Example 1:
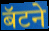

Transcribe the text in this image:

बॅटने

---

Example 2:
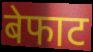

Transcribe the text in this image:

बेफाट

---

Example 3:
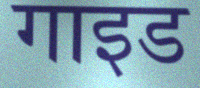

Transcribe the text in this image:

गाइड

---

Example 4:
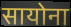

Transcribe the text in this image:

सायोना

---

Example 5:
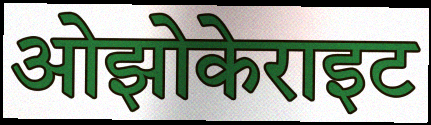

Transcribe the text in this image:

ओझोकेराइट